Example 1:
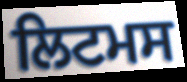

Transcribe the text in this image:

ਲਿਟਮਸ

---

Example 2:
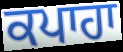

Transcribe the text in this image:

ਕਪਾਹਾ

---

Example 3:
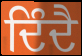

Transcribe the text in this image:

ਦਿੰਦੈ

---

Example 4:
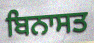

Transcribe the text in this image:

ਬਿਨਾਸਤ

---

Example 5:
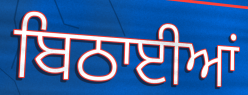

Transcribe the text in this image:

ਬਿਠਾਈਆਂ